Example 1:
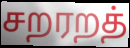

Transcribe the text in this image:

சறரறத்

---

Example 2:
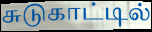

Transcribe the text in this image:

சுடுகாட்டில்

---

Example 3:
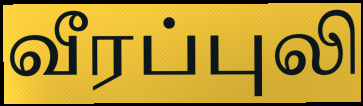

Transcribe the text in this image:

வீரப்புலி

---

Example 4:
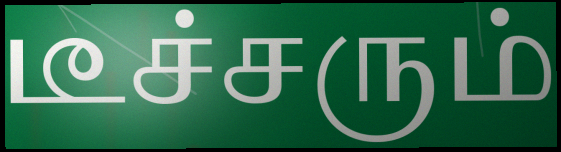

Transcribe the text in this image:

டீச்சரும்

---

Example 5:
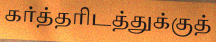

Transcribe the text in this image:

கர்த்தரிடத்துக்குத்